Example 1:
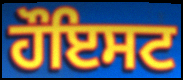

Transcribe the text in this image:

ਹੌਇਸਟ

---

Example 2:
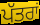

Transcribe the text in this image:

ਪੱਤਰਾਂ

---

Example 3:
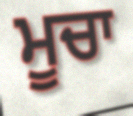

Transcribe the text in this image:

ਮੂਚਾ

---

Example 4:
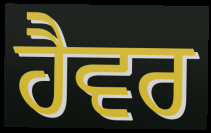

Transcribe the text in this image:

ਹੈਵਰ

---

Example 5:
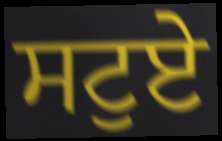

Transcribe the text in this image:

ਸਟੁਏ